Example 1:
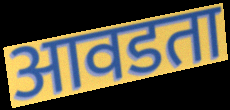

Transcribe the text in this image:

आवडता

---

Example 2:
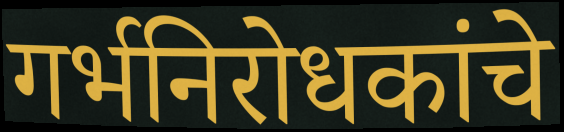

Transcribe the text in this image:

गर्भनिरोधकांचे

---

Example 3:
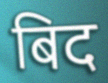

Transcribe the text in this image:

बिद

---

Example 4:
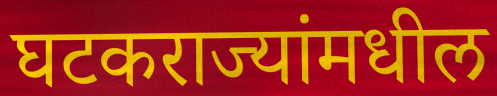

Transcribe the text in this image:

घटकराज्यांमधील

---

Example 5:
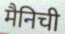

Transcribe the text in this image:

मैनिची